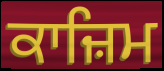
ਕਾਜ਼ਿਮ